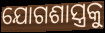
ଯୋଗଶାସ୍ତ୍ରକୁ